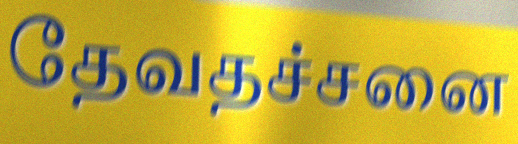
தேவதச்சனை